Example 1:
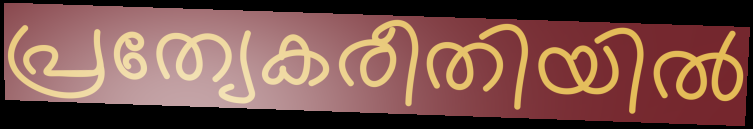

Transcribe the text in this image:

പ്രത്യേകരീതിയിൽ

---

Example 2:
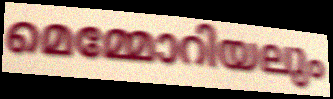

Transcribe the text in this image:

മെമ്മോറിയലും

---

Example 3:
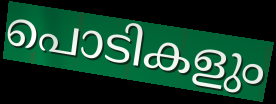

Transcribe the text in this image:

പൊടികളും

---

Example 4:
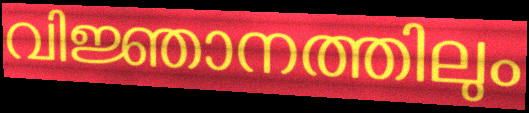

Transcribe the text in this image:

വിജ്ഞാനത്തിലും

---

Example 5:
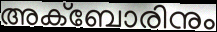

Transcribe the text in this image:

അക്ബോരിനും